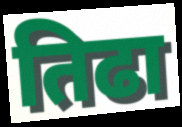
तिढा